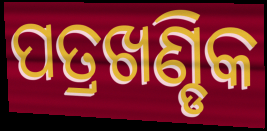
ପତ୍ରଖଣ୍ଡିକ